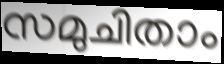
സമുചിതാം